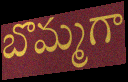
బొమ్మగా